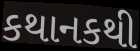
કથાનકથી